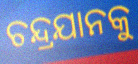
ଚନ୍ଦ୍ରଯାନକୁ